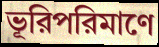
ভূরিপরিমাণে